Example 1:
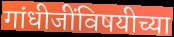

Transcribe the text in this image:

गांधीजींविषयीच्या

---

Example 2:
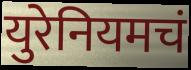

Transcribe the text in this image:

युरेनियमचं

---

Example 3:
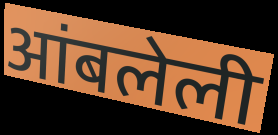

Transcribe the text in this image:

आंबलेली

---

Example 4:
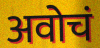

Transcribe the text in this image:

अवोचं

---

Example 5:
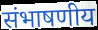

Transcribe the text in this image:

संभाषणीय